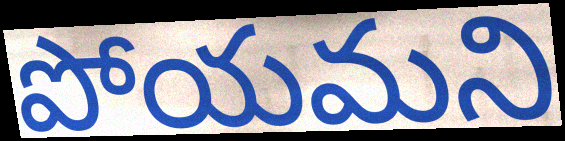
పోయమని